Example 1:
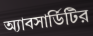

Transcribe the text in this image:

অ্যাবসার্ডিটির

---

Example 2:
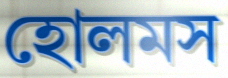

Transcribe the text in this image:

হোলমস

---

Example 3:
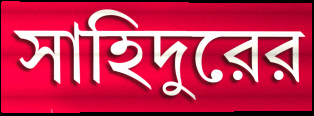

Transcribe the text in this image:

সাহিদুরের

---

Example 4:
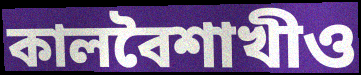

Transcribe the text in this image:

কালবৈশাখীও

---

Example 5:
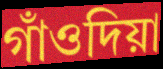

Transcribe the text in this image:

গাঁওদিয়া